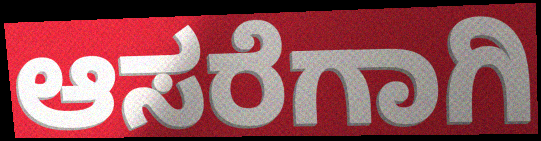
ಆಸರೆಗಾಗಿ